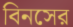
বিনসের